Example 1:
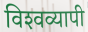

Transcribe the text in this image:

विश्‍वव्यापी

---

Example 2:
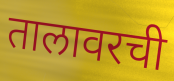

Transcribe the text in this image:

तालावरची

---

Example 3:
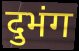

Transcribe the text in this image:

दुभंग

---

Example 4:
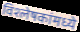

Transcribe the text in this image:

विश्लेषकांमध्ये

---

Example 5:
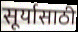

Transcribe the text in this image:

सूर्यासाठी